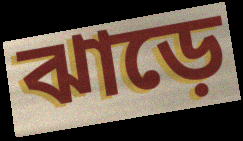
ঝাড়ে